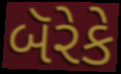
બૅરેકે